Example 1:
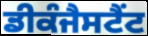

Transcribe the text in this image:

ਡੀਕੰਜੈਸਟੈਂਟ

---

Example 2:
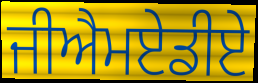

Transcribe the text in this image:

ਜੀਐਮਏਡੀਏ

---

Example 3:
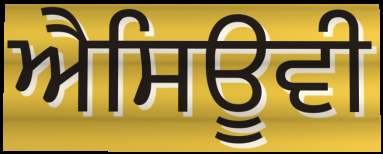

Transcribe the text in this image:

ਐਸਿਊਵੀ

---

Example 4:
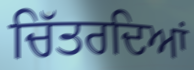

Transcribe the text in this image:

ਚਿੱਤਰਦਿਆਂ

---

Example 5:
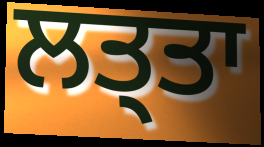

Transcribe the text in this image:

ਲਤ੍ਤਾ